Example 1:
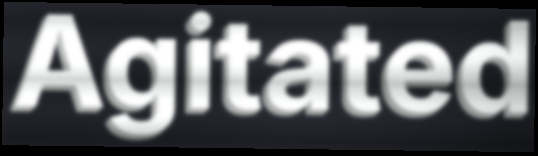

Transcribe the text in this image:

Agitated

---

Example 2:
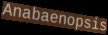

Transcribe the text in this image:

Anabaenopsis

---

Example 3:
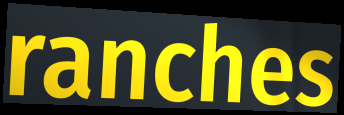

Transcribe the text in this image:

ranches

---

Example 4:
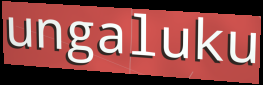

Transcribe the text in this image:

ungaluku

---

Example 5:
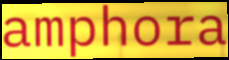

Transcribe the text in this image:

amphora